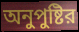
অনুপুষ্টির